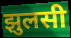
झुलसी